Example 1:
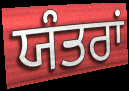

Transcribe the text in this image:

ਯੰਤਰਾਂ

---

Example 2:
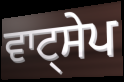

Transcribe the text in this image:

ਵਾਟ੍ਸੇਪ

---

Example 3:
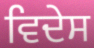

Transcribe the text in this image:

ਵਿਦੇਸ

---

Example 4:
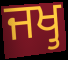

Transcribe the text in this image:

ਜਖ੍ਤ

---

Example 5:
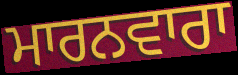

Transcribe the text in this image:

ਮਾਰਨਵਾਰਾ